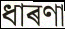
ধাৰণা